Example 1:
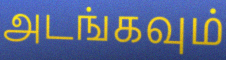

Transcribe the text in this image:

அடங்கவும்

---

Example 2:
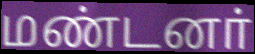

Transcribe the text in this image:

மண்டனர்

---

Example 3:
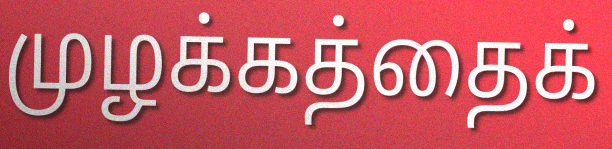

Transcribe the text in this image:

முழக்கத்தைக்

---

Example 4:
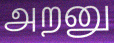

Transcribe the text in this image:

அறனு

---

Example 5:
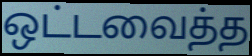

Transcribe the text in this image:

ஒட்டவைத்த